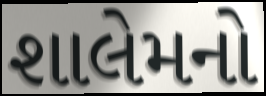
શાલેમનો